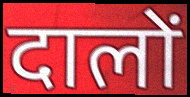
दालों